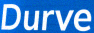
Durve